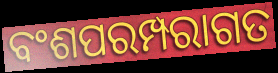
ବଂଶପରମ୍ପରାଗତ